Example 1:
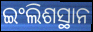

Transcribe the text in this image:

ଇଂଲିଶସ୍ଥାନ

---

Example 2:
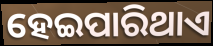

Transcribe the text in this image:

ହେଇପାରିଥାଏ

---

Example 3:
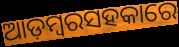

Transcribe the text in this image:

ଆଡ଼ମ୍ବରସହକାରେ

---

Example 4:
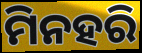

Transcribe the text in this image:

ମିନହରି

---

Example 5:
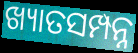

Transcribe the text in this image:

ଖ୍ୟାତସମ୍ପନ୍ନ